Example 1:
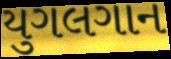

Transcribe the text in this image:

યુગલગાન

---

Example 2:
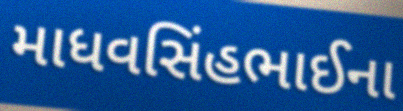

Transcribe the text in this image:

માધવસિંહભાઈના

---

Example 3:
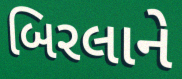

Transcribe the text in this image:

બિરલાને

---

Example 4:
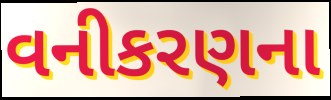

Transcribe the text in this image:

વનીકરણના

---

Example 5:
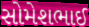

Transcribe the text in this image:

સોમેશભાઈ